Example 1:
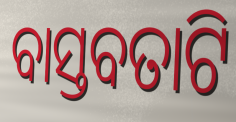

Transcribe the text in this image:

ବାସ୍ତବତାଟି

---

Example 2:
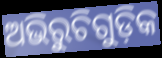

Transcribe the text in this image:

ଅଭିରୁଚିଗୁଡ଼ିକ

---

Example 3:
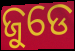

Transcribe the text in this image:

ଜୁଡେ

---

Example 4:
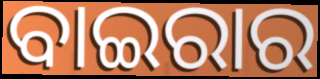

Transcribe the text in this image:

ବାଇରାର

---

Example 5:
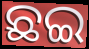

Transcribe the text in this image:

ଛଇ